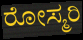
ರೋಸ್ಮರಿ